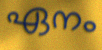
ഏനം